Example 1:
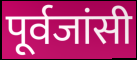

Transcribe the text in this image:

पूर्वजांसी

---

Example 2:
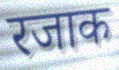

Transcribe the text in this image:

रजाक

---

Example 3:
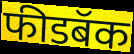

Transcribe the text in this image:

फीडबॅक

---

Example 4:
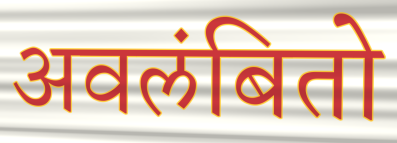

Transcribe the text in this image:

अवलंबितो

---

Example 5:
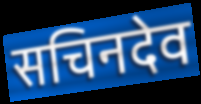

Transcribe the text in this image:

सचिनदेव